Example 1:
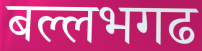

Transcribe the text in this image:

बल्लभगढ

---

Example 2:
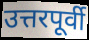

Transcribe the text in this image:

उत्तरपूर्वी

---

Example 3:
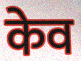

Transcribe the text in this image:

केव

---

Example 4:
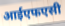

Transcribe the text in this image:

आईएफएसी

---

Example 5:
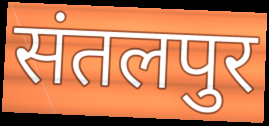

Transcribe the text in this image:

संतलपुर